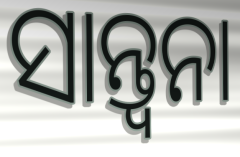
ସାନ୍ତ୍ୱନା